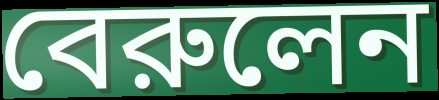
বেরুলেন